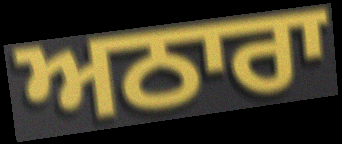
ਅਠਾਰਾ